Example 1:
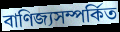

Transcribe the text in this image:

বাণিজ্যসম্পর্কিত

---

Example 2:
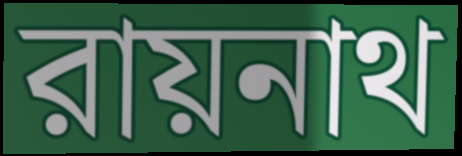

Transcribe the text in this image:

রায়নাথ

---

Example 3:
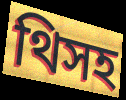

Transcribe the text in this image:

থিসহ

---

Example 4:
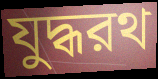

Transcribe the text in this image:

যুদ্ধরথ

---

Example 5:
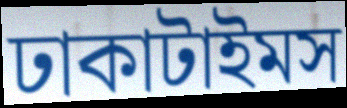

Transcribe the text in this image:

ঢাকাটাইমস